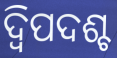
ଦ୍ବିପଦଶ୍ଚ